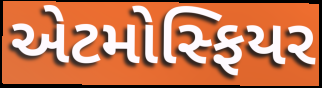
એટમોસ્ફિયર